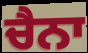
ਚੈਨਾ